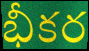
భీకర